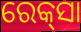
ରେକ୍‍ସା